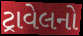
ટ્રાવેલનો